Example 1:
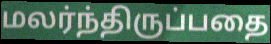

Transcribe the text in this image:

மலர்ந்திருப்பதை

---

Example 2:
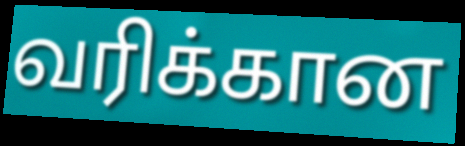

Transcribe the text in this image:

வரிக்கான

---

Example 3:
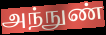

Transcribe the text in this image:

அந்நுண்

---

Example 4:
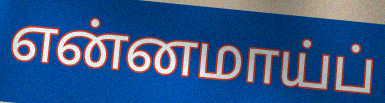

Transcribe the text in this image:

என்னமாய்ப்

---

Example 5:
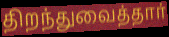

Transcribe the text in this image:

திறந்துவைத்தார்